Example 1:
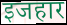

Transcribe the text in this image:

इजहार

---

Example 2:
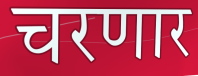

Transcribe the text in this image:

चरणार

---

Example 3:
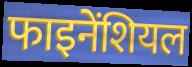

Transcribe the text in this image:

फाइनेंशियल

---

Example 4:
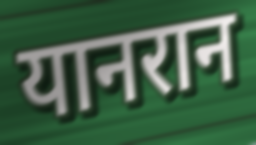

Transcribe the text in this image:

यानरान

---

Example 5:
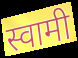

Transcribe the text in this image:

स्वामी